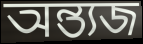
অন্ত্যজ